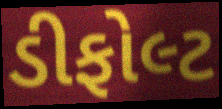
ડીફોલ્ટ